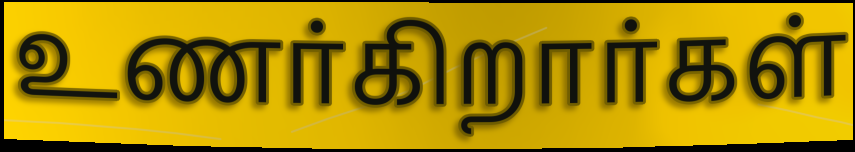
உணர்கிறார்கள்